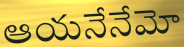
ఆయనేనేమో